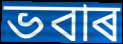
ভবাৰ